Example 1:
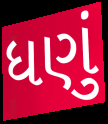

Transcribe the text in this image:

ધણું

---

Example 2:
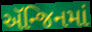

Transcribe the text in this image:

ઍન્જિનમાં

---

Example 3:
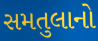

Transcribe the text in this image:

સમતુલાનો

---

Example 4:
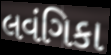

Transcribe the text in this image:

લવંગિકા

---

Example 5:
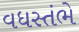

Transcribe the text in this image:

વધસ્તંભે